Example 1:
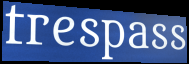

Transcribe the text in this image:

trespass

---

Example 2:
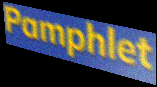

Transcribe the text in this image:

Pamphlet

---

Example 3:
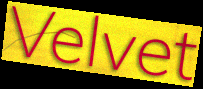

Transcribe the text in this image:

Velvet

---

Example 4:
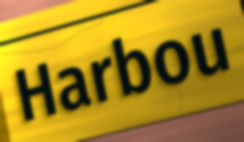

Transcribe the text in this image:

Harbou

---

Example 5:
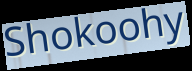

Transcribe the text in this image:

Shokoohy